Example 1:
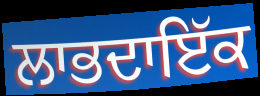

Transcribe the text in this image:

ਲਾਭਦਾਇੱਕ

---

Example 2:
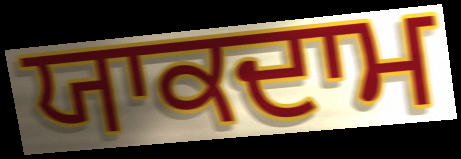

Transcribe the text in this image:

ਯਾਕਦਾਮ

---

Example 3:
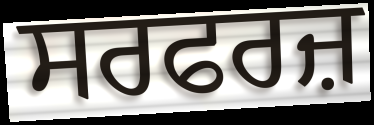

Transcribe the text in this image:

ਸਰਫਰਜ਼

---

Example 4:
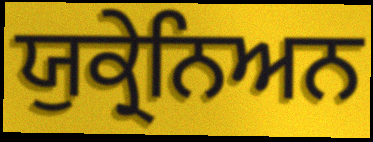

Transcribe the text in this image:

ਯੁਕ੍ਰੇਨਿਅਨ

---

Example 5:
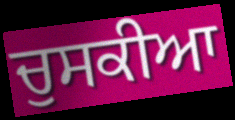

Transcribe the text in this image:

ਚੁਸਕੀਆ